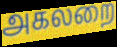
அகலறை